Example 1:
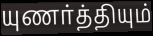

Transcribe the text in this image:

யுணர்த்தியும்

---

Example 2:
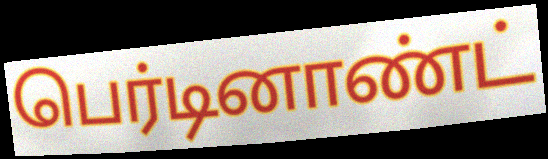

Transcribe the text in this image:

பெர்டினாண்ட்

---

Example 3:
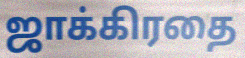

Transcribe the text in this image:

ஜாக்கிரதை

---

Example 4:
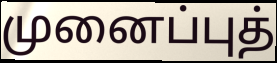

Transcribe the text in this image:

முனைப்புத்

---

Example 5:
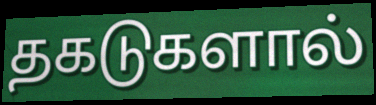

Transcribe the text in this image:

தகடுகளால்